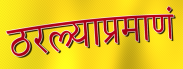
ठरल्याप्रमाणं